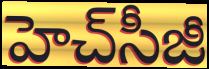
హెచ్‌సీజీ